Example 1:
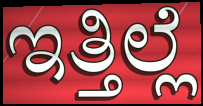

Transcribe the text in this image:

ಇತ್ತಿಲ್ಲೆ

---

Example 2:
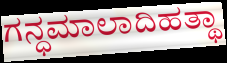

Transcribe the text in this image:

ಗನ್ಧಮಾಲಾದಿಹತ್ಥಾ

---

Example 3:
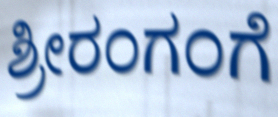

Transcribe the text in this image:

ಶ್ರೀರಂಗಂಗೆ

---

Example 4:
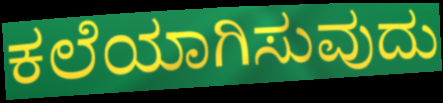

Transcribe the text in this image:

ಕಲೆಯಾಗಿಸುವುದು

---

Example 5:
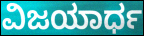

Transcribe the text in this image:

ವಿಜಯಾರ್ಧ